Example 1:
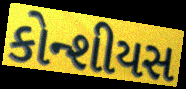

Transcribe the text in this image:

કોન્શીયસ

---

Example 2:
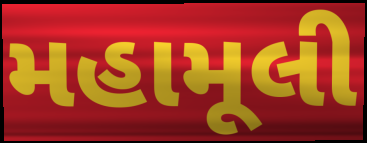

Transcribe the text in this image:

મહામૂલી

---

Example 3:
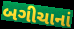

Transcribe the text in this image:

બગીચાનાં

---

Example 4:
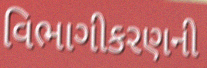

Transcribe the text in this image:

વિભાગીકરણની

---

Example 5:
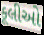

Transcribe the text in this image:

કૂલીઓ